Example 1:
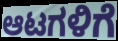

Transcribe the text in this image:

ಆಟಗಳಿಗೆ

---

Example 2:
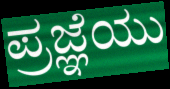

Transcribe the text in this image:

ಪ್ರಜ್ಞೆಯು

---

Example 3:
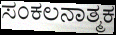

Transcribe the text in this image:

ಸಂಕಲನಾತ್ಮಕ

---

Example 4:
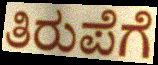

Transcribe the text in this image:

ತಿರುಪೆಗೆ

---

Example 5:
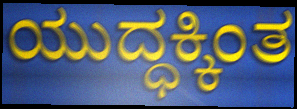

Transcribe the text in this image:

ಯುದ್ಧಕ್ಕಿಂತ